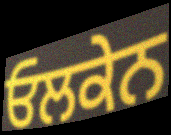
ਓਲਕੇਨ